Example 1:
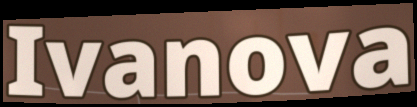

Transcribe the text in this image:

Ivanova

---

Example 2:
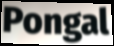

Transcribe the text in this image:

Pongal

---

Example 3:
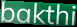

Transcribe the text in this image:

bakthi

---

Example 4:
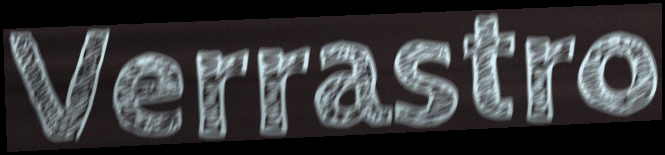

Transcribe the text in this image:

Verrastro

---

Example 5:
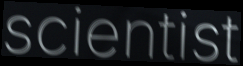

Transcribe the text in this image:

scientist